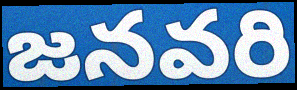
జనవరి